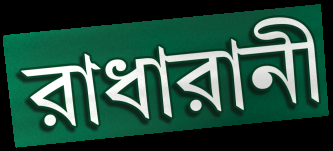
রাধারানী